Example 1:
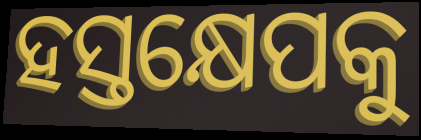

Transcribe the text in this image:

ହସ୍ତକ୍ଷେପକୁ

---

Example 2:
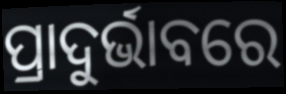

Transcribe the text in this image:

ପ୍ରାଦୁର୍ଭାବରେ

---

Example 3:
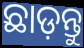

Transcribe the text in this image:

ଛାଡ଼ନ୍ତୁ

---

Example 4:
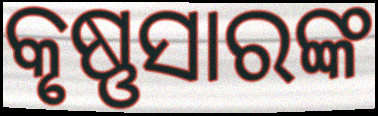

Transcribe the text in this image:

କୃଷ୍ଣସାରଙ୍କ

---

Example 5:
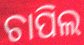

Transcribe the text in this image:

ଚାପିଲ